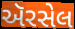
ઍરસેલ